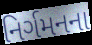
નિર્ગમનના